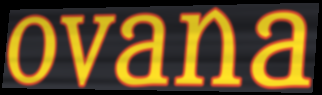
ovana